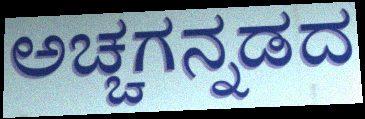
ಅಚ್ಚಗನ್ನಡದ